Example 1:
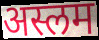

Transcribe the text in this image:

अस्लम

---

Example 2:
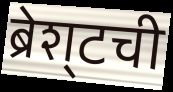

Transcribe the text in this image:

ब्रेश्टची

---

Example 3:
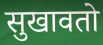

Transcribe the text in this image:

सुखावतो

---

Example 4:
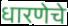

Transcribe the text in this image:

धारणेचे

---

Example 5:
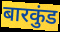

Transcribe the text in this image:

बारकुंड